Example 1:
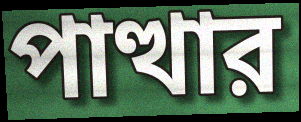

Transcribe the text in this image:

পাত্থার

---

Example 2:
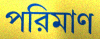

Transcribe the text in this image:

পরিমাণ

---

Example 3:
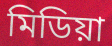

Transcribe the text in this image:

মিডিয়া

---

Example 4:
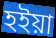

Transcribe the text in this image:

হইয়া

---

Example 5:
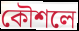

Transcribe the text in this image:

কৌশলে